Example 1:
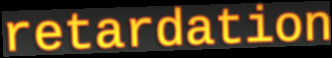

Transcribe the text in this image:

retardation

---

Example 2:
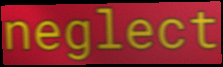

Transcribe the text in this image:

neglect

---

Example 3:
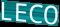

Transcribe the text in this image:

LECO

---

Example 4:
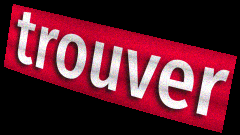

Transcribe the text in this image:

trouver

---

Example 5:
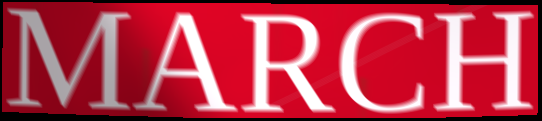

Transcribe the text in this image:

MARCH